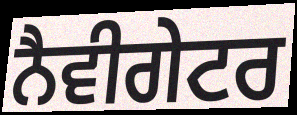
ਨੈਵੀਗੇਟਰ